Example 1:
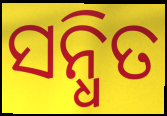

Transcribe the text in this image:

ସନ୍ଧିତ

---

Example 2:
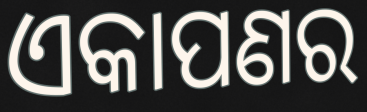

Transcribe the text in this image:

ଏକାପଣର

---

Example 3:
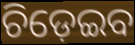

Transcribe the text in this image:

ଚିଡ଼େଇବ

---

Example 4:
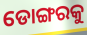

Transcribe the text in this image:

ଡୋଙ୍ଗରକୁ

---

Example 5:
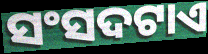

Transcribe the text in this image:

ସଂସଦଟାଏ